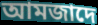
আমজাদে